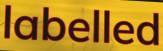
labelled